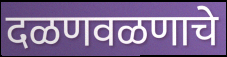
दळणवळणाचे